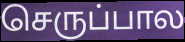
செருப்பால